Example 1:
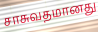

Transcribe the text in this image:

சாசுவதமானது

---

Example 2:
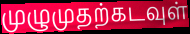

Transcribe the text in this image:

முழுமுதற்கடவுள்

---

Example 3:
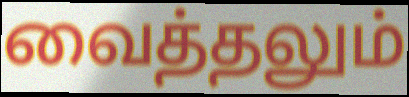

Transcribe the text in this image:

வைத்தலும்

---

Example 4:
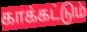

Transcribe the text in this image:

காக்கட்டும்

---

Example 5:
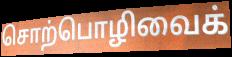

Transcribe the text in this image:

சொற்பொழிவைக்